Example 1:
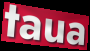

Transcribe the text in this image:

taua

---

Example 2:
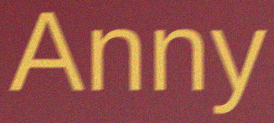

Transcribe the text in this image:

Anny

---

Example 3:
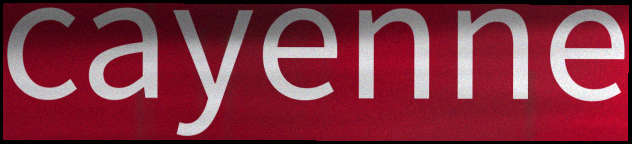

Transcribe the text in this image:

cayenne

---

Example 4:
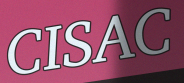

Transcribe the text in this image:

CISAC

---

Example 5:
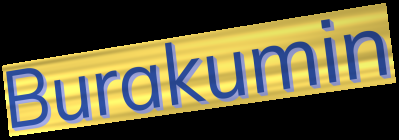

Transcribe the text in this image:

Burakumin